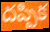
దప్పిక